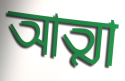
আত্মা